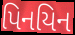
પિનયિન